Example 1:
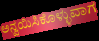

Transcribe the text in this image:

ಅನ್ವಯಿಸಿಕೊಳ್ಳುವಾಗ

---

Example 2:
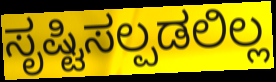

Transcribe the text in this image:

ಸೃಷ್ಟಿಸಲ್ಪಡಲಿಲ್ಲ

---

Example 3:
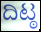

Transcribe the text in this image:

ದಿಟ್ಠ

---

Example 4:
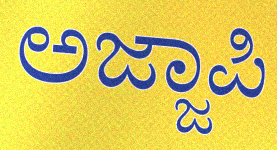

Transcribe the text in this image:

ಅಜ್ಜಾಪಿ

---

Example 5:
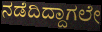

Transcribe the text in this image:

ನಡೆದಿದ್ದಾಗಲೇ